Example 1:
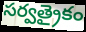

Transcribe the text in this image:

సర్వత్రైకం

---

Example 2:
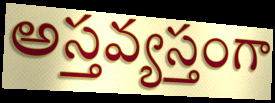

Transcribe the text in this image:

అస్తవ్యస్తంగా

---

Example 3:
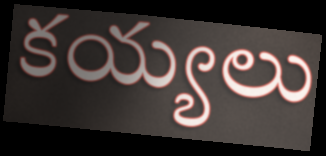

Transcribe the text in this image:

కయ్యలు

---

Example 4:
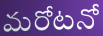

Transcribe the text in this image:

మరోటనో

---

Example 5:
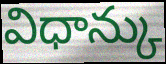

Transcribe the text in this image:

విధాన్కు